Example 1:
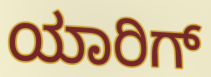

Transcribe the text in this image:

ಯಾರಿಗ್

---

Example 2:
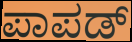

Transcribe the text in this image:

ಪಾಪಡ್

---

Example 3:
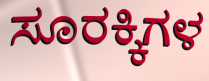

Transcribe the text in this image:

ಸೂರಕ್ಕಿಗಳ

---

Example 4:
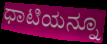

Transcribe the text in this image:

ಧಾಟಿಯನ್ನೂ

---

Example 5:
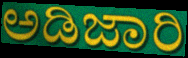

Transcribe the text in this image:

ಅಡಿಜಾರಿ